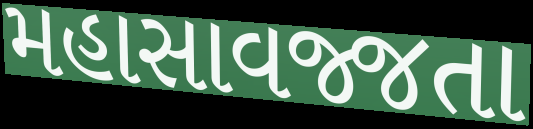
મહાસાવજ્જતા